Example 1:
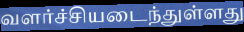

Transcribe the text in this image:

வளர்ச்சியடைந்துள்ளது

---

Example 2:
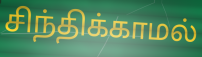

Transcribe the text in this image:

சிந்திக்காமல்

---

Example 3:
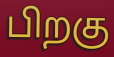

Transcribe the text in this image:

பிறகு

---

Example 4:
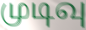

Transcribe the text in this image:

முடிவு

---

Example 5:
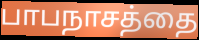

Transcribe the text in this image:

பாபநாசத்தை